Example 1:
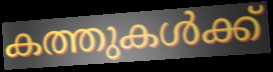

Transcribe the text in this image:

കത്തുകൾക്ക്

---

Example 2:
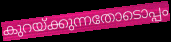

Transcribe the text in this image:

കുറയ്ക്കുന്നതോടൊപ്പം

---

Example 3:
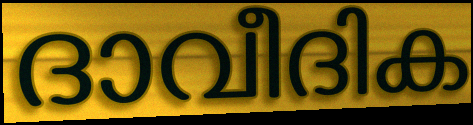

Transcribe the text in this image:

ദാവീദിക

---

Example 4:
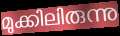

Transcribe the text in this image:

മുക്കിലിരുന്നു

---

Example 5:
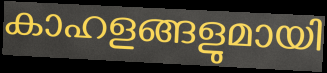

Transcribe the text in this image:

കാഹളങ്ങളുമായി